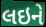
લઇને